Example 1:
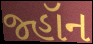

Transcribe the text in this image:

જ્હૉન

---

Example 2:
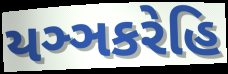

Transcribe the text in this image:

યઞ્ઞકરેહિ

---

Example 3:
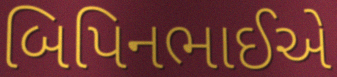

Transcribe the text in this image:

બિપિનભાઈએ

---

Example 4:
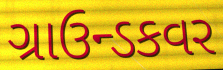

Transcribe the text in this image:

ગ્રાઉન્ડકવર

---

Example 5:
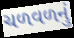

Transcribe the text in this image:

ચળવળનું